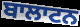
ਬਾਲਾਟਨ